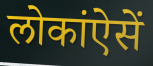
लोकांऐसें